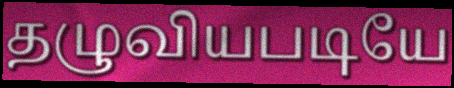
தழுவியபடியே